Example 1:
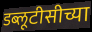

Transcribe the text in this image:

डब्लूटीसीच्या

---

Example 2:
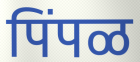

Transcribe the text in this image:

पिंपळ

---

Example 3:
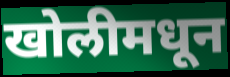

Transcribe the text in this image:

खोलीमधून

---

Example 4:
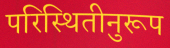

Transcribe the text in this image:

परिस्थितीनुरूप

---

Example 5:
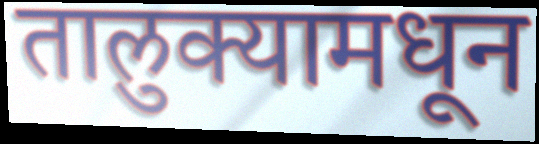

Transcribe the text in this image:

तालुक्यामधून